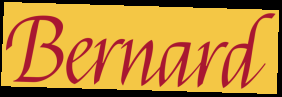
Bernard